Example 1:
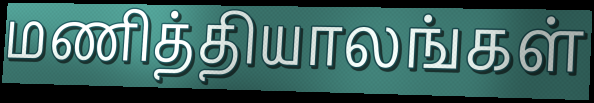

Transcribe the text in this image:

மணித்தியாலங்கள்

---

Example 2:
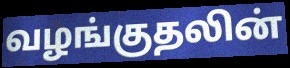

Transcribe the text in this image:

வழங்குதலின்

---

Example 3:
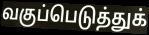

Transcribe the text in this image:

வகுப்பெடுத்துக்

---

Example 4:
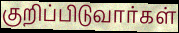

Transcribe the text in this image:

குறிப்பிடுவார்கள்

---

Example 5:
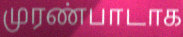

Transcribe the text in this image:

முரண்பாடாக